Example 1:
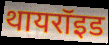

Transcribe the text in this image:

थायरॉइड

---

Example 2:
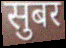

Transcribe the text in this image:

सुबर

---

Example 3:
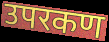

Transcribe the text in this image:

उपरकण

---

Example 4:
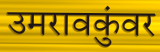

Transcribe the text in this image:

उमरावकुंवर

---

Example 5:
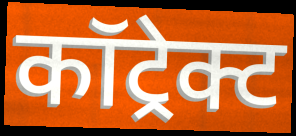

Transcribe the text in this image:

कॉट्रेक्ट